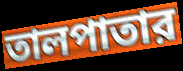
তালপাতার